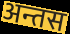
अन्तस